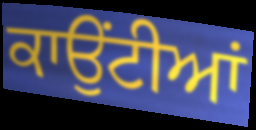
ਕਾਉਂਟੀਆਂ